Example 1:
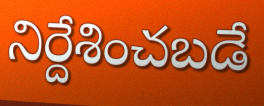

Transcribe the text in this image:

నిర్దేశించబడే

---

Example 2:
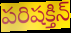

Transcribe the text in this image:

పరిషక్తిన్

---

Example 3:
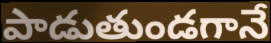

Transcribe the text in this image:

పాడుతుండగానే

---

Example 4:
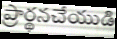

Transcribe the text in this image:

ప్రార్థనచేయుడి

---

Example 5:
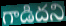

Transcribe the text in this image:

గాడిదని